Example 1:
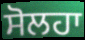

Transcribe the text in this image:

ਸੋਲਹਾ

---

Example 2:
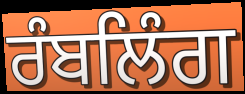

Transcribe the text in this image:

ਰੰਬਲਿੰਗ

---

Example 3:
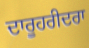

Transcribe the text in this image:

ਦਾਰੂਹਰੀਦਰਾ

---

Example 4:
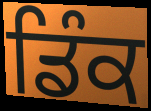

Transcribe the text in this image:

ਡਿੰਕ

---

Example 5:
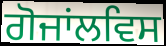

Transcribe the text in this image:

ਗੋਜਾਂਲਵਿਸ